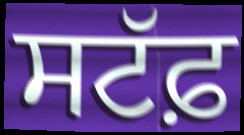
ਸਟੱਫ਼